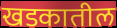
खडकातील